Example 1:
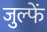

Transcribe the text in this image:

जुल्फें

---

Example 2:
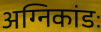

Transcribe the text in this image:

अग्निकांडः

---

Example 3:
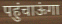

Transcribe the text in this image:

पहुंचाऊंगा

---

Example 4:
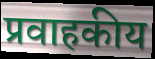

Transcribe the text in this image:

प्रवाहकीय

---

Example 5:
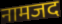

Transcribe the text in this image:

नामजद